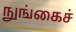
நுங்கைச்